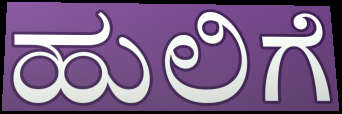
ಹುಲಿಗೆ